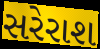
સરેરાશ